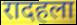
रादहला